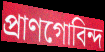
প্রাণগোবিন্দ